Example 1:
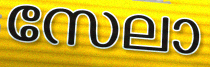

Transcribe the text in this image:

സേലാ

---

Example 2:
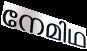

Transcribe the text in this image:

നേമിഥ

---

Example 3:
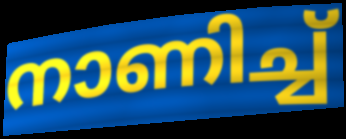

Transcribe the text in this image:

നാണിച്ച്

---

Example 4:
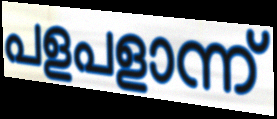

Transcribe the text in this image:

പളപളാന്ന്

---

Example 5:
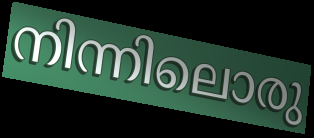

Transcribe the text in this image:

നിന്നിലൊരു